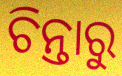
ଚିନ୍ତାରୁ